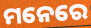
ମନେରେ